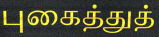
புகைத்துத்